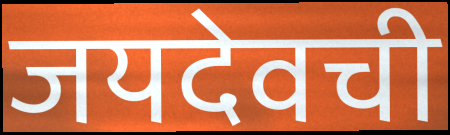
जयदेवची